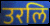
उरलि